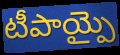
టీపాయ్పై